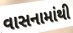
વાસનામાંથી